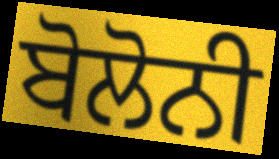
ਬੋਲੋਨੀ